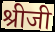
श्रीजी